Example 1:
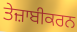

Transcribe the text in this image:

ਤੇਜ਼ਾਬੀਕਰਨ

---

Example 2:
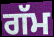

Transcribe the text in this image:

ਗੱਮ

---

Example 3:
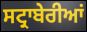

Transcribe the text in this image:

ਸਟ੍ਰਾਬੇਰੀਆਂ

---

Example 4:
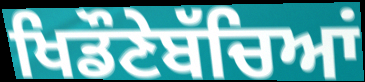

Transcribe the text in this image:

ਖਿਡੌਣੇਬੱਚਿਆਂ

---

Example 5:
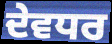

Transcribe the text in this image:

ਦੇਵਧਰ